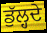
ਡੁੱਲ੍ਹਦੇ